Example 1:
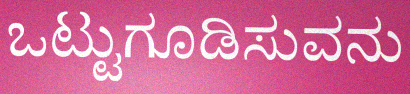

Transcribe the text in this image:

ಒಟ್ಟುಗೂಡಿಸುವನು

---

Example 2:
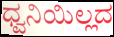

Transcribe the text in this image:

ಧ್ವನಿಯಿಲ್ಲದ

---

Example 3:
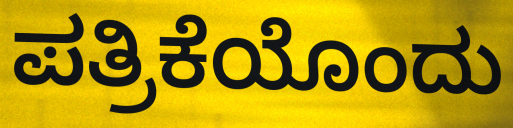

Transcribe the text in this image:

ಪತ್ರಿಕೆಯೊಂದು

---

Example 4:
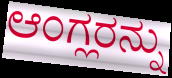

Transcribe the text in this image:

ಆಂಗ್ಲರನ್ನು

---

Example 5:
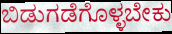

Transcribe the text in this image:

ಬಿಡುಗಡೆಗೊಳ್ಳಬೇಕು